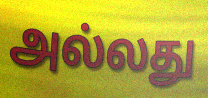
அல்லது